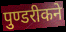
पुण्डरीकने